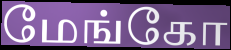
மேங்கோ